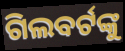
ଗିଲବର୍ଟଙ୍କୁ